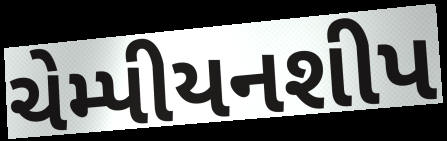
ચેમ્પીયનશીપ